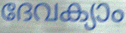
ദേവക്യാം